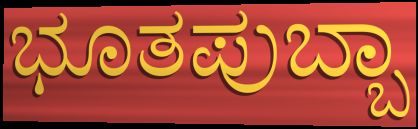
ಭೂತಪುಬ್ಬಾ